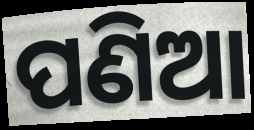
ପଣିଆ